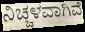
ನಿಚ್ಚಳವಾಗಿವೆ